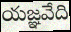
యజ్ఞవేది